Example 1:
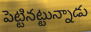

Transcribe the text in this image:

పెట్టినట్టున్నాడు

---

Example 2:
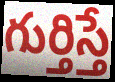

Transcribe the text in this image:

గుర్తిస్తే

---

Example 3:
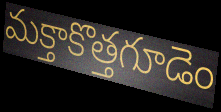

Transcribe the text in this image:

మక్తాకొత్తగూడెం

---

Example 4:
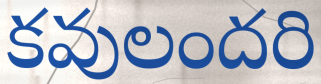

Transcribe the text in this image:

కవులందరి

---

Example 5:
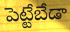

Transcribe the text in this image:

పెట్టేబేడా